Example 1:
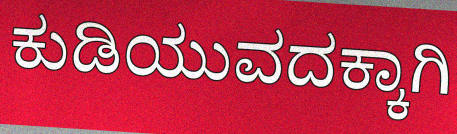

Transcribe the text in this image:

ಕುಡಿಯುವದಕ್ಕಾಗಿ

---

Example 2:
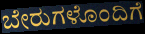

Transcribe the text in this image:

ಬೇರುಗಳೊಂದಿಗೆ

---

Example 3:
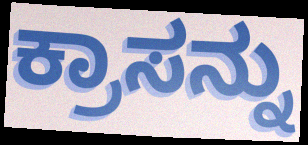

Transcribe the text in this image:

ಕ್ರಾಸನ್ನು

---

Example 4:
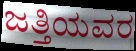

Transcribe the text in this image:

ಜತ್ತಿಯವರ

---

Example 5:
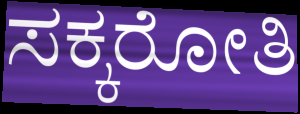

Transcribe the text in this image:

ಸಕ್ಕರೋತಿ